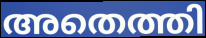
അതെത്തി